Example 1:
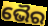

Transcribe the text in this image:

ଭୈର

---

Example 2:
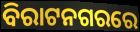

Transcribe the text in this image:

ବିରାଟନଗରରେ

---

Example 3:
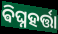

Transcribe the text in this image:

ଵିଘ୍ନହର୍ତ୍ତା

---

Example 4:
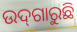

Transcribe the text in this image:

ଉଦ୍‌ଗାରୁଛି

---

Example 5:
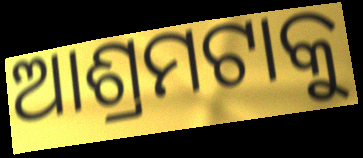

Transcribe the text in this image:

ଆଶ୍ରମଟାକୁ